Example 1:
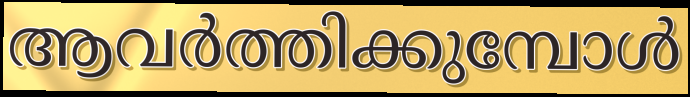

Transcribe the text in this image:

ആവർത്തിക്കുമ്പോൾ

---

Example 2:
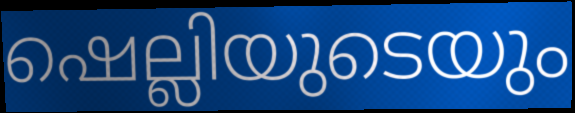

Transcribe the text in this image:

ഷെല്ലിയുടെയും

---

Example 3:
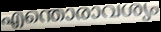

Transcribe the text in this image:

എന്തൊരാവശ്യം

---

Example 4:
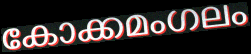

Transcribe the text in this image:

കോക്കമംഗലം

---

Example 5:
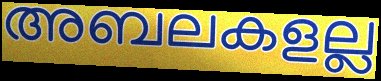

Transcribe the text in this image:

അബലകളല്ല